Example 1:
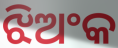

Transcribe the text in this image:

ଝିଅଂକ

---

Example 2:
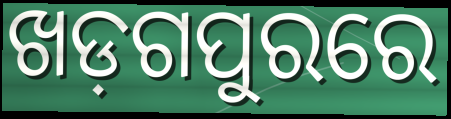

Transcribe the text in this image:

ଖଡ଼ଗପୁରରେ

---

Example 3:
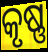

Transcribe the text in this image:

କୃଷ୍ଣ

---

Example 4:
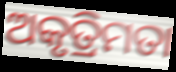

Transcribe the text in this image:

ଅକୃତ୍ରିମତା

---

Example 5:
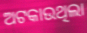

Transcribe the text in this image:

ଅଟକାଉଥିଲା